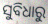
ସୁବିଧାରୁ